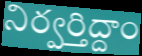
నిర్వర్తిద్దాం